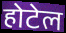
होटेल